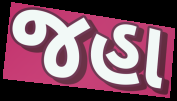
જહા